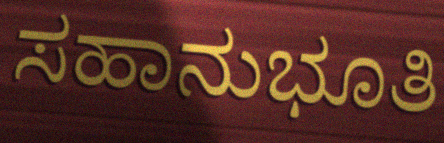
ಸಹಾನುಭೂತಿ